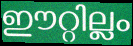
ഈറ്റില്ലം